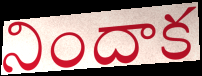
నిందాక